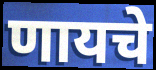
णायचे